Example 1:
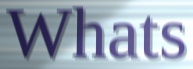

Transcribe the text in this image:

Whats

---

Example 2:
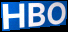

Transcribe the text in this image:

HBO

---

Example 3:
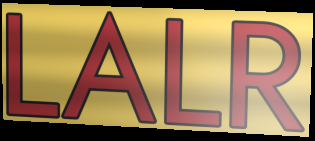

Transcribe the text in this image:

LALR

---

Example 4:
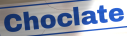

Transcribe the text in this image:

Choclate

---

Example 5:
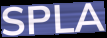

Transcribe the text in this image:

SPLA